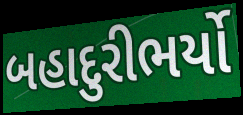
બહાદુરીભર્યો